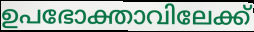
ഉപഭോക്താവിലേക്ക്